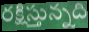
రక్షిస్తున్నది